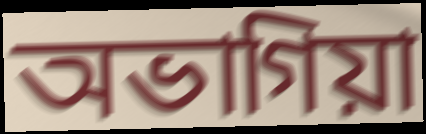
অভাগিয়া